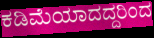
ಕಡಿಮೆಯಾದದ್ದರಿಂದ